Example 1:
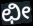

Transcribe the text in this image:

ಛೀ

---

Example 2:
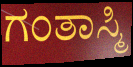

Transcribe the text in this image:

ಗಂತಾಸ್ಮಿ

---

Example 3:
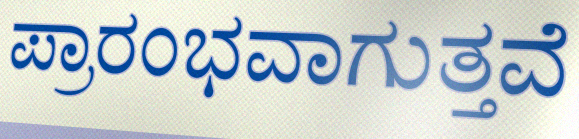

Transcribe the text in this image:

ಪ್ರಾರಂಭವಾಗುತ್ತವೆ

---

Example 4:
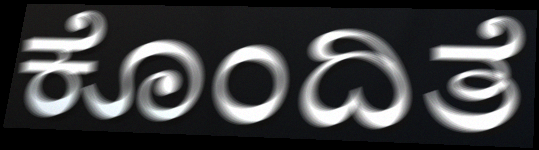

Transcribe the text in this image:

ಕೊಂದಿತೆ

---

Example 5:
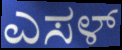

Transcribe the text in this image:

ಎಸಳ್